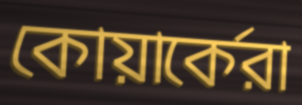
কোয়ার্কেরা